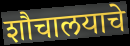
शौचालयाचे